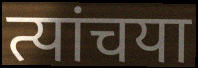
त्यांचया